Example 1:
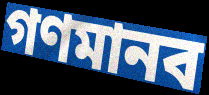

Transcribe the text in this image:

গণমানব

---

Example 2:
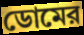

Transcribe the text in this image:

ডোমের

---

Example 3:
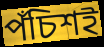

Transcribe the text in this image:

পঁচিশই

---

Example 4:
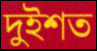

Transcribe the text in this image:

দুইশত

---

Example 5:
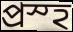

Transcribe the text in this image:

প্রস্হ